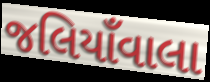
જલિયાઁવાલા